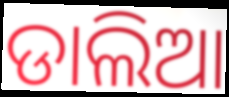
ଡାଲିଆ